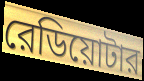
রেডিয়োটার